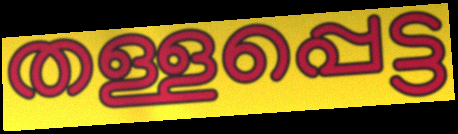
തള്ളപ്പെട്ട